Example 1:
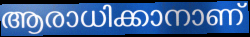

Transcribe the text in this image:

ആരാധിക്കാനാണ്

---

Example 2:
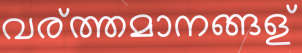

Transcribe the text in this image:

വര്ത്തമാനങ്ങള്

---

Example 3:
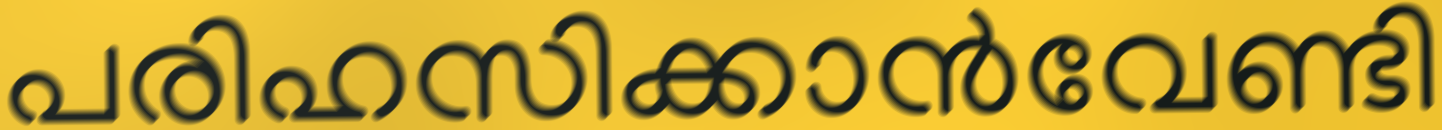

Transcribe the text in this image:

പരിഹസിക്കാൻവേണ്ടി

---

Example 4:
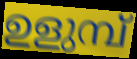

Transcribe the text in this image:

ഉളുമ്പ്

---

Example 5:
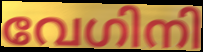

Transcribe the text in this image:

വേഗിനി